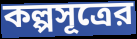
কল্পসূত্রের